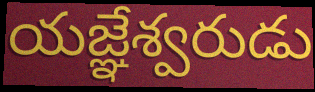
యజ్ఞేశ్వరుడు